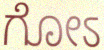
ಗೋಽ